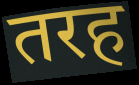
तरह